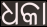
ଧକା